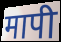
मापी